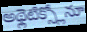
అథ్లెటిక్స్లోనూ